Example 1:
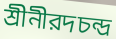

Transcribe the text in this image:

শ্রীনীরদচন্দ্র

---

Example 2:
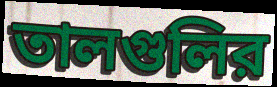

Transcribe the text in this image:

তালগুলির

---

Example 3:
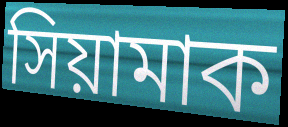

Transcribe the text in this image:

সিয়ামাক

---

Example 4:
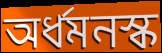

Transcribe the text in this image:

অর্ধমনস্ক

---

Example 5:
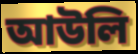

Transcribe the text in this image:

আউলি